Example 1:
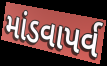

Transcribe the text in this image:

માંડવાપર્વ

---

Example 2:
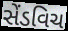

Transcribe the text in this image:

સેંડવિચ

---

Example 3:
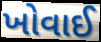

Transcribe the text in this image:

ખોવાઈ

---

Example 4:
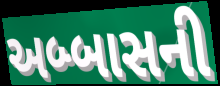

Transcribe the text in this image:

અબ્બાસની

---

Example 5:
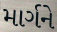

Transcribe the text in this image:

માર્ગને